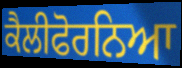
ਕੈਲੀਫੋਰਨਿਆ